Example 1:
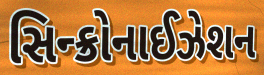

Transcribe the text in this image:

સિન્ક્રોનાઈઝેશન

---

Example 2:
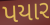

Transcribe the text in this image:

પયાર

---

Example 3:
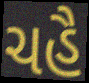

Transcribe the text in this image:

ચહૈ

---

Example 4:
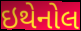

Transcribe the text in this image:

ઇથેનોલ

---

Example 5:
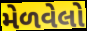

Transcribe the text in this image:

મેળવેલો